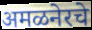
अमळनेरचे